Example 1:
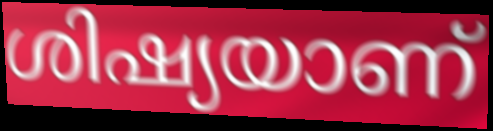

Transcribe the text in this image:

ശിഷ്യയാണ്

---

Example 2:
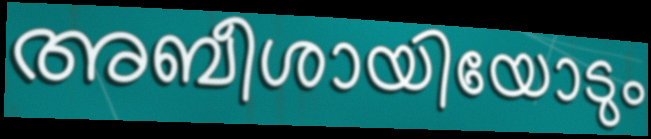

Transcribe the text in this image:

അബീശായിയോടും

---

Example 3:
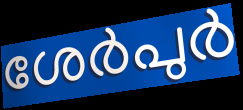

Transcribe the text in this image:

ശേർപുർ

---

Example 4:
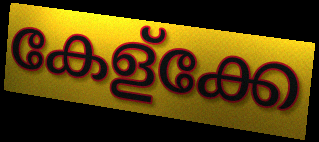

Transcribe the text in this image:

കേള്ക്കേ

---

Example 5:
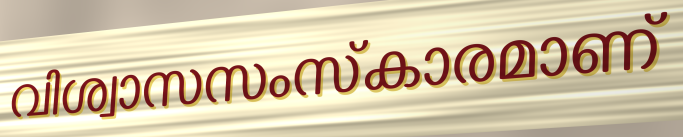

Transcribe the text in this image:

വിശ്വാസസംസ്‌കാരമാണ്